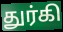
துர்கி